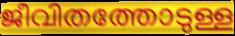
ജീവിതത്തോടുള്ള